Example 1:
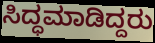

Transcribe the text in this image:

ಸಿದ್ಧಮಾಡಿದ್ದರು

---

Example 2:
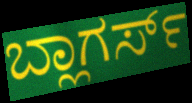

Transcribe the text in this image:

ಬ್ಲಾಗರ್ಸ್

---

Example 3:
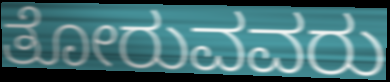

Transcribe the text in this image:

ತೋರುವವರು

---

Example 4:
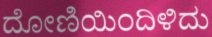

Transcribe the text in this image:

ದೋಣಿಯಿಂದಿಳಿದು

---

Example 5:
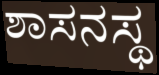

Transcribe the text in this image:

ಶಾಸನಸ್ಥ